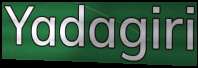
Yadagiri